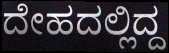
ದೇಹದಲ್ಲಿದ್ದ